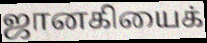
ஜானகியைக்